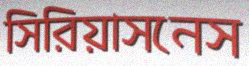
সিরিয়াসনেস